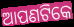
ଆପଣଟିକେ